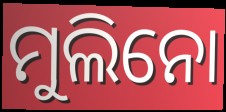
ମୁଲିନୋ